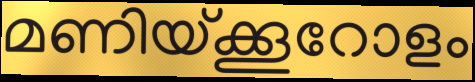
മണിയ്ക്കൂറോളം